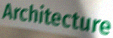
Architecture